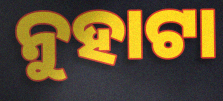
ନୁହାଟା